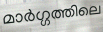
മാർഗ്ഗത്തിലെ